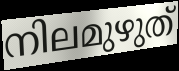
നിലമുഴുത്